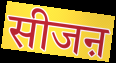
सीजऩ